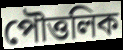
পৌত্তলিক